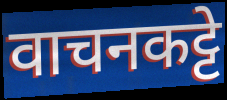
वाचनकट्टे